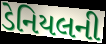
ડેનિયલની